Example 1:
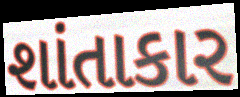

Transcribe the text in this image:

શાંતાકાર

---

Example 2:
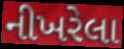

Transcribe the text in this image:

નીખરેલા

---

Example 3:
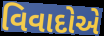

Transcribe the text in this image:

વિવાદોએ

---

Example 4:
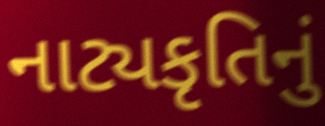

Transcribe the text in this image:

નાટ્યકૃતિનું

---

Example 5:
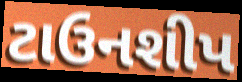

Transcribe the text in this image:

ટાઉનશીપ